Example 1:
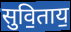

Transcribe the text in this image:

सुवि॒ताय॒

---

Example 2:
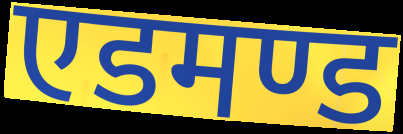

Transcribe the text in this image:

एडमण्ड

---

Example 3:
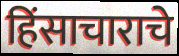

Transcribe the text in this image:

हिंसाचाराचे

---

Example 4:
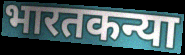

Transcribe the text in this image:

भारतकन्या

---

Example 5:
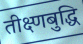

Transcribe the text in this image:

तीक्ष्णबुद्धि